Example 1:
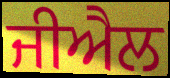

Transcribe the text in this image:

ਜੀਐਲ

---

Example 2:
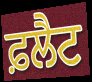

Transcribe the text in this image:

ਫ਼ਲੈਟ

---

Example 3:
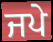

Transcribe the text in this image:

ਜਪੇ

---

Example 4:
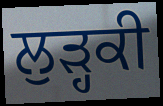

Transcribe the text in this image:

ਲੁੜ੍ਹਕੀ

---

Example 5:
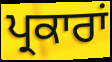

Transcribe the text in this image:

ਪ੍ਰਕਾਰਾਂ